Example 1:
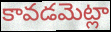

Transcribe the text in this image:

కావడమెట్లా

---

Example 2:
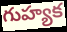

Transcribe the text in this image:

గుహ్యక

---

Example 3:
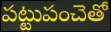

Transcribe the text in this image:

పట్టుపంచెతో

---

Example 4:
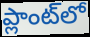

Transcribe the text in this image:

ప్లాంట్‌లో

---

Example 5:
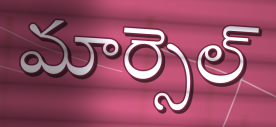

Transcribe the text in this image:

మార్సెల్